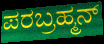
ಪರಬ್ರಹ್ಮನ್